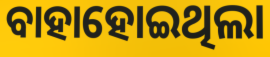
ବାହାହୋଇଥିଲା